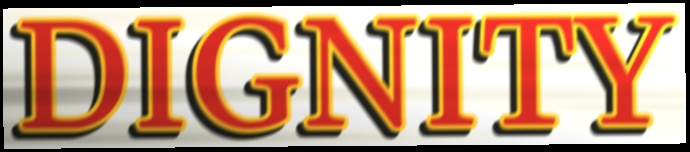
DIGNITY